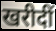
खरीदीं